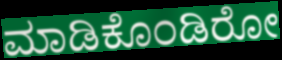
ಮಾಡಿಕೊಂಡಿರೋ